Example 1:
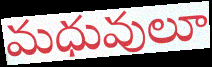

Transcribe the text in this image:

మధువులూ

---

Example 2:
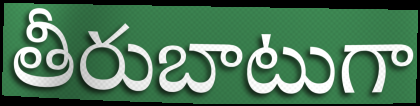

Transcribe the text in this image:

తీరుబాటుగా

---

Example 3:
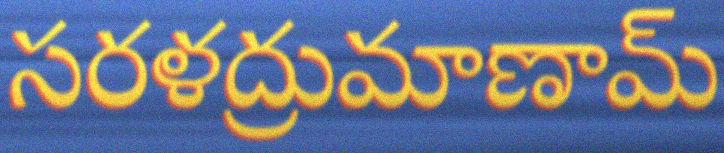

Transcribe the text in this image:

సరళద్రుమాణామ్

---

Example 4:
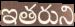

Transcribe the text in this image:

ఇతరుని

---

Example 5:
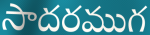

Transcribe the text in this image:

సాదరముగ